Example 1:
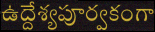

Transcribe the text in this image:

ఉద్దేశ్యపూర్వకంగా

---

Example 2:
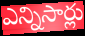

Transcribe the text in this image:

ఎన్నిసార్లు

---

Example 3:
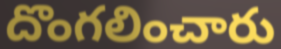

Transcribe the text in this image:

దొంగలించారు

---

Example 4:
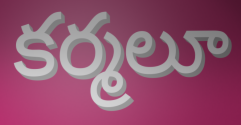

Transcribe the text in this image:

కర్మలూ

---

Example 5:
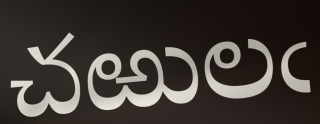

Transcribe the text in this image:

చఱులఁ